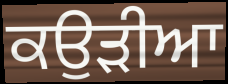
ਕਉੜੀਆ